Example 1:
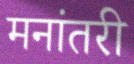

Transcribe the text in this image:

मनांतरी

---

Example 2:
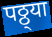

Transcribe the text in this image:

पठ्ठ्या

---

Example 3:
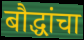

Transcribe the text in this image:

बौद्धांचा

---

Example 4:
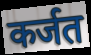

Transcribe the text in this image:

कर्जत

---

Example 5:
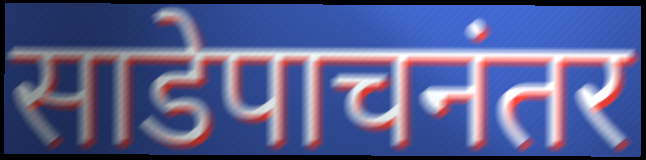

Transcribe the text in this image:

साडेपाचनंतर